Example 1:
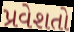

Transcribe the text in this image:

પ્રવેશતો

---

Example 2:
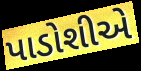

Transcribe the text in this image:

પાડોશીએ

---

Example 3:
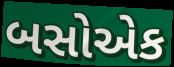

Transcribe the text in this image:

બસોએક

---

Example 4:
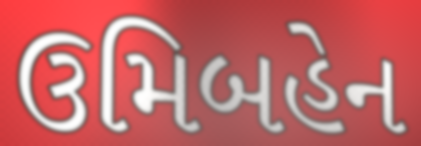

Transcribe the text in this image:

ઉમિબહેન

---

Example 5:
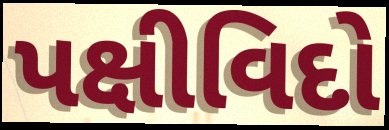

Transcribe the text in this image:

પક્ષીવિદો